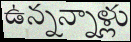
ఉన్నన్నాళ్లు